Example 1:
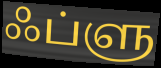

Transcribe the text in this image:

ஃப்ளு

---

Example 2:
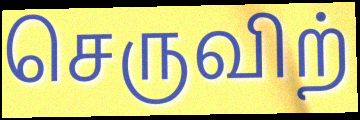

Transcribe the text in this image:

செருவிற்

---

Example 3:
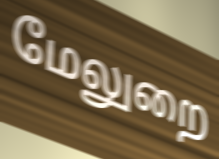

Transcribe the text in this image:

மேலுறை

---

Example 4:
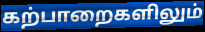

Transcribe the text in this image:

கற்பாறைகளிலும்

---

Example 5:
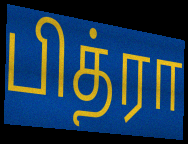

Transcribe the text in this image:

பித்ரா